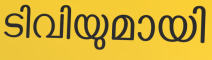
ടിവിയുമായി